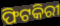
ଫିଟକିରୀ